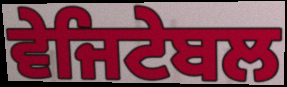
ਵੇਜਿਟੇਬਲ